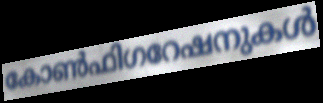
കോൺഫിഗറേഷനുകൾ